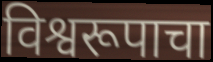
विश्वरूपाचा